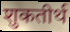
शुकतीर्थ